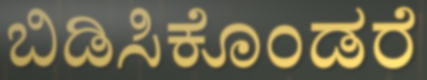
ಬಿಡಿಸಿಕೊಂಡರೆ